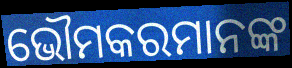
ଭୌମକରମାନଙ୍କ